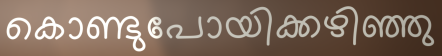
കൊണ്ടുപോയിക്കഴിഞ്ഞു